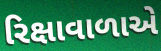
રિક્ષાવાળાએ